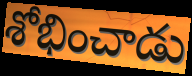
శోభించాడు